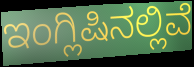
ಇಂಗ್ಲಿಷಿನಲ್ಲಿವೆ